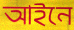
আইনে